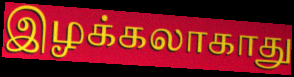
இழக்கலாகாது